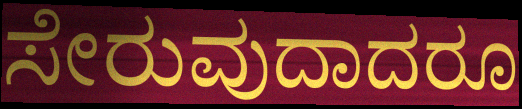
ಸೇರುವುದಾದರೂ